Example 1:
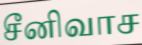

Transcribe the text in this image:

சீனிவாச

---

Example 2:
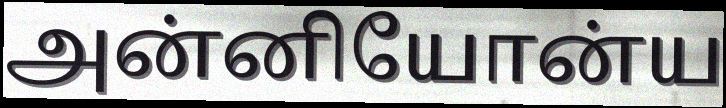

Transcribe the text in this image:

அன்னியோன்ய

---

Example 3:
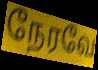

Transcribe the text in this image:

நேரவே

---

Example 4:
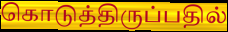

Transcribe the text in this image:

கொடுத்திருப்பதில்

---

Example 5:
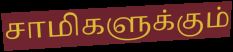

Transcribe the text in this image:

சாமிகளுக்கும்